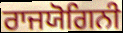
ਰਾਜਯੋਗਿਨੀ